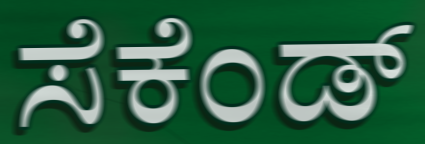
ಸೆಕೆಂಡ್